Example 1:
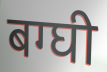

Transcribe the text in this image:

बग्घी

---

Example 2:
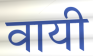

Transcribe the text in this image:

वायी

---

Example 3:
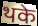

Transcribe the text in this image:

थके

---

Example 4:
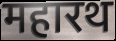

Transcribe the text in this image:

महारथ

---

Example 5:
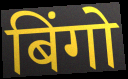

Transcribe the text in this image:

बिंगो